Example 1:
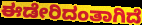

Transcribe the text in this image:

ಈಡೇರಿದಂತಾಗಿದೆ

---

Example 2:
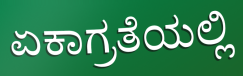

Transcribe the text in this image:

ಏಕಾಗ್ರತೆಯಲ್ಲಿ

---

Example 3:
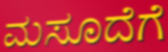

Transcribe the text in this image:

ಮಸೂದೆಗೆ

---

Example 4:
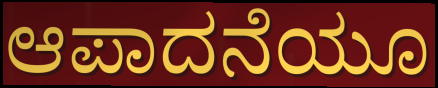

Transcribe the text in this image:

ಆಪಾದನೆಯೂ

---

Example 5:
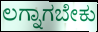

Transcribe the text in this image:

ಲಗ್ನಾಗಬೇಕು